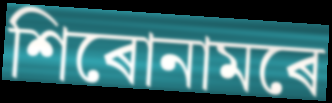
শিৰোনামৰে